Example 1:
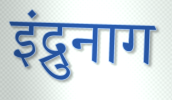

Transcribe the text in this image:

इंद्रुनाग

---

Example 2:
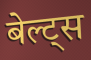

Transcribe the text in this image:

बेल्ट्स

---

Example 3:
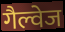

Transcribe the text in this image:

गैल्वेज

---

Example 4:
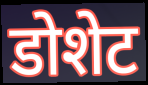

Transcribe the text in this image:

डोशेट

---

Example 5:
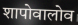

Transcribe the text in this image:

शापोवालोव